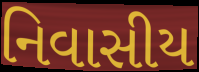
નિવાસીય